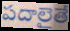
పదాలైతే